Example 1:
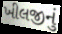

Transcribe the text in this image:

ખીલજીનું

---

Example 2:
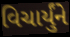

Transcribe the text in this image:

વિચાર્યુંને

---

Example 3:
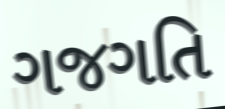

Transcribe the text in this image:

ગજગતિ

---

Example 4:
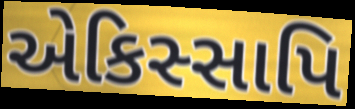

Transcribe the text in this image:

એકિસ્સાપિ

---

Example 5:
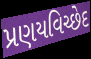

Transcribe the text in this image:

પ્રણયવિચ્છેદ